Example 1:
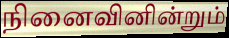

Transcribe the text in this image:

நினைவினின்றும்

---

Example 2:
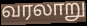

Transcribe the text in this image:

வரலாறு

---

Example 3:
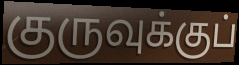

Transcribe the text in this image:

குருவுக்குப்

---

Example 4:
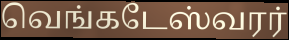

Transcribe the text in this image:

வெங்கடேஸ்வரர்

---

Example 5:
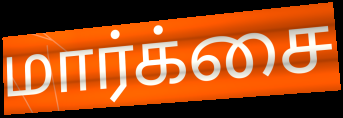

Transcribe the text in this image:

மார்க்சை